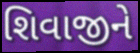
શિવાજીને